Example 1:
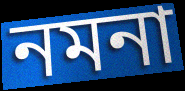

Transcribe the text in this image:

নমনা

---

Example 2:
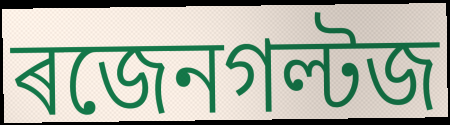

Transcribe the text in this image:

ৰজেনগল্টজ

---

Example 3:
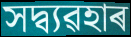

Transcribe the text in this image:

সদ্ব্যৱহাৰ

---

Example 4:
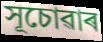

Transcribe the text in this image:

সূচোৱাৰ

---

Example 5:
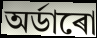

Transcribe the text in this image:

অৰ্ডাৰো